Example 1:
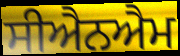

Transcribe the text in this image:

ਸੀਐਨਐਮ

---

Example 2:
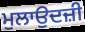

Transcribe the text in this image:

ਮੁਲਾਉਦਜ਼ੀ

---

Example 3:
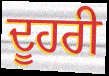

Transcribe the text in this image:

ਦੂਹਰੀ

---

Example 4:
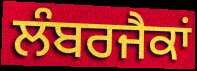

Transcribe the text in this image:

ਲੰਬਰਜੈਕਾਂ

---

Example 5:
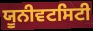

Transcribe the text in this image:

ਯੂਨੀਵਟਸਿਟੀ